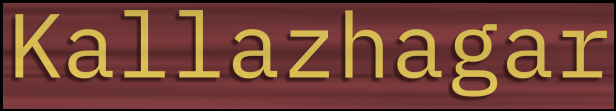
Kallazhagar